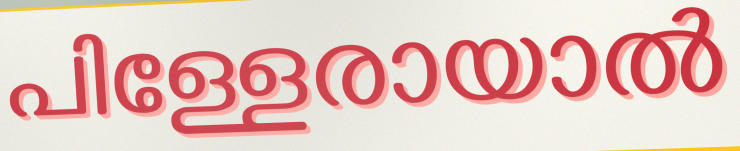
പിള്ളേരായാൽ